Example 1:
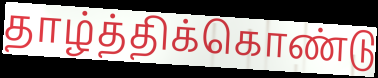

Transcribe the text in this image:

தாழ்த்திக்கொண்டு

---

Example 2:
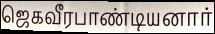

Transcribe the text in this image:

ஜெகவீரபாண்டியனார்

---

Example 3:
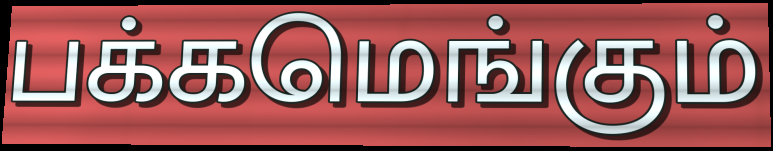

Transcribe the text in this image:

பக்கமெங்கும்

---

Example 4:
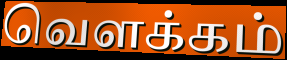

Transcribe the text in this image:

வெளக்கம்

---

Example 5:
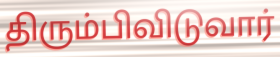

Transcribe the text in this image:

திரும்பிவிடுவார்